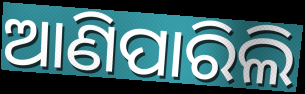
ଆଣିପାରିଲି